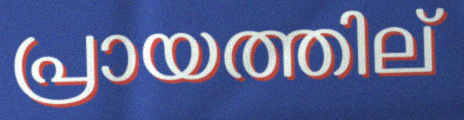
പ്രായത്തില്